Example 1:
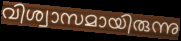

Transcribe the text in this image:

വിശ്വാസമായിരുന്നു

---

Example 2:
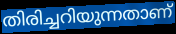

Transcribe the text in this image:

തിരിച്ചറിയുന്നതാണ്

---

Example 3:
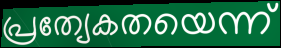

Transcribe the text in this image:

പ്രത്യേകതയെന്ന്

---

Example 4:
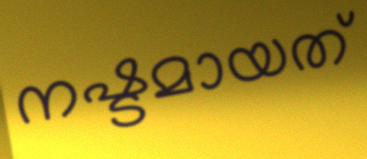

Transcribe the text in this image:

നഷ്ടമായത്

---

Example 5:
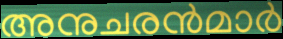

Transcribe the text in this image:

അനുചരൻമാർ